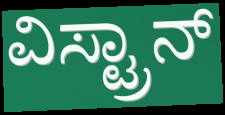
ವಿಸ್ಟ್ರಾನ್